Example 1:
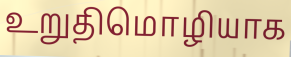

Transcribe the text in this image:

உறுதிமொழியாக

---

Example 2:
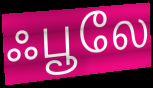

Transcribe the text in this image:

ஃபூலே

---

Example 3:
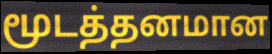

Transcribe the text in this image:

மூடத்தனமான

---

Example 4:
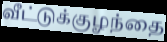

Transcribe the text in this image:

வீட்டுக்குழந்தை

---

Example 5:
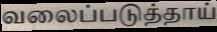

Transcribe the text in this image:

வலைப்படுத்தாய்